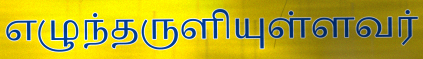
எழுந்தருளியுள்ளவர்